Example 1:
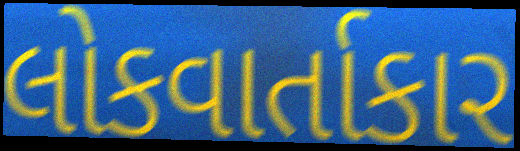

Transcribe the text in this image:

લોકવાર્તાકાર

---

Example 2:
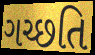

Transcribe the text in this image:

ગચ્છતિ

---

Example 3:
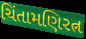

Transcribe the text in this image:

ચિંતામણિરત્ન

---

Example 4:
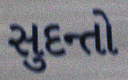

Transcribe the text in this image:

સુદન્તો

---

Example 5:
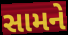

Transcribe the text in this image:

સામને